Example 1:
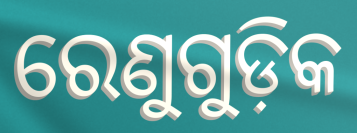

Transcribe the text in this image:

ରେଣୁଗୁଡ଼ିକ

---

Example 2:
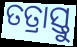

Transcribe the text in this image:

ତତ୍ରାସ୍ତୁ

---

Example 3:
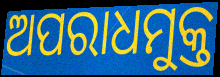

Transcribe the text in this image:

ଅପରାଧମୁକ୍ତ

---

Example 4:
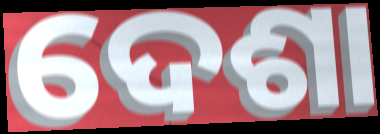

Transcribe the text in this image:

ଦେଶା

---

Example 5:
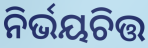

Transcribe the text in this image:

ନିର୍ଭୟଚିତ୍ତ